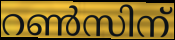
റൺസിന്